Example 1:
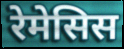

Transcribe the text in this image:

रेमेसिस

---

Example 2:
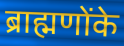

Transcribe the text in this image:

ब्राह्मणोंके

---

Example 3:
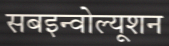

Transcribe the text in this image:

सबइन्वोल्यूशन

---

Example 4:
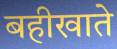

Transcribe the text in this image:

बहीखाते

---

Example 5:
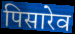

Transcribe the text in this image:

पिसारेव